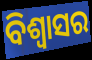
ବିଶ୍ୱାସର